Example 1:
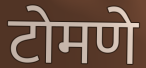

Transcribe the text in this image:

टोमणे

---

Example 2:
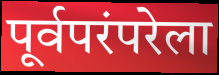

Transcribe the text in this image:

पूर्वपरंपरेला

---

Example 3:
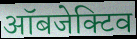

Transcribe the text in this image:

ऑबजेक्टिव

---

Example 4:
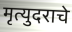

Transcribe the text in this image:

मृत्युदराचे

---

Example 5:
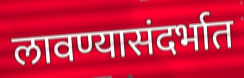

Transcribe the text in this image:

लावण्यासंदर्भात